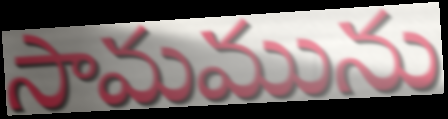
సామమును